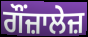
ਗੌਂਜ਼ਾਲੇਜ਼